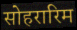
सोहरारिम